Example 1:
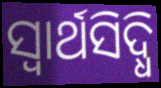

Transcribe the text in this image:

ସ୍ୱାର୍ଥସିଦ୍ଧି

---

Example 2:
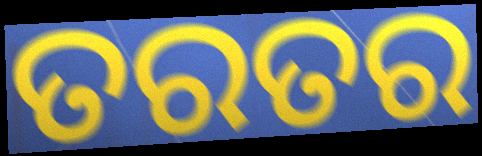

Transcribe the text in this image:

ତରତର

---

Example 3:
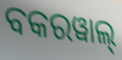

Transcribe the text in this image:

ବକରୱାଲ୍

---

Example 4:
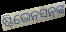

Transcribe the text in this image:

ଷ୍ଟିଭେନସନ୍‍ଙ୍କ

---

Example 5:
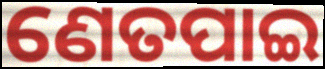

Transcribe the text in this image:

ଣେତପାଇ